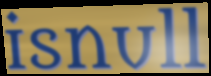
isnull